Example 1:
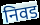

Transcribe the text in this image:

निवड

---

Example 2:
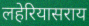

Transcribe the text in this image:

लहेरियासराय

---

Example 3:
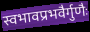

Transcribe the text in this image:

स्वभावप्रभवैर्गुणैः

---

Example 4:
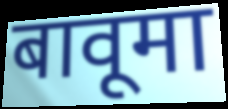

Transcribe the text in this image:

बावूमा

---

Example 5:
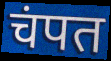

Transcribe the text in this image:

चंपत